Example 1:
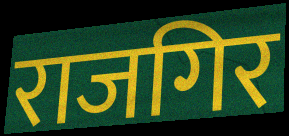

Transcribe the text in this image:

राजगिर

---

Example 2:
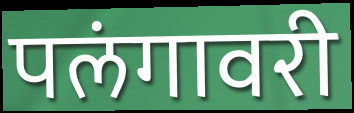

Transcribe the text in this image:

पलंगावरी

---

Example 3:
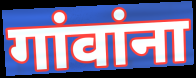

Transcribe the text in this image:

गांवांना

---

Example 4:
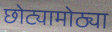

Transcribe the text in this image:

छोट्यामोठ्या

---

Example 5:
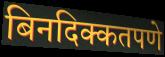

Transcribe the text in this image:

बिनदिक्कतपणे